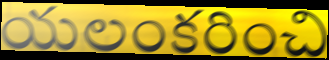
యలంకరించి